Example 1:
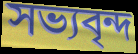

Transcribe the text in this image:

সভ্যবৃন্দ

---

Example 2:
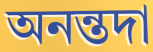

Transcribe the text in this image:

অনন্তদা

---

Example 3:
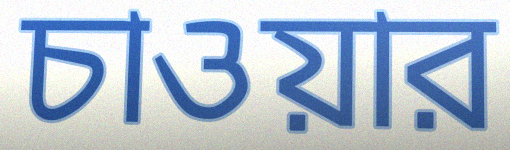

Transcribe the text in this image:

চাওয়ার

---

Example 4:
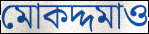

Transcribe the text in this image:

মোকদ্দমাও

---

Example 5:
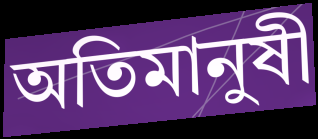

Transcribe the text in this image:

অতিমানুষী